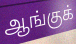
ஆங்குக்